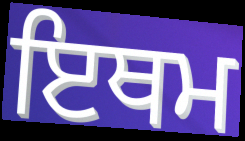
ਇਥਮ